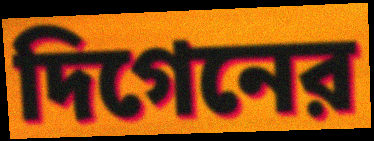
দিগেনের